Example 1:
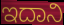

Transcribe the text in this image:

ಇದಾನಿ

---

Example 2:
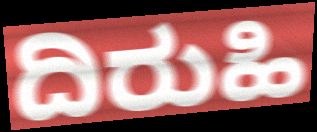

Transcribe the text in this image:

ದಿರುಹಿ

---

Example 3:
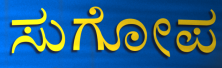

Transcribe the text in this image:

ಸುಗೋಪ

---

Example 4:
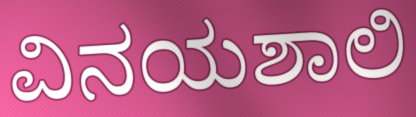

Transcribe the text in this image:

ವಿನಯಶಾಲಿ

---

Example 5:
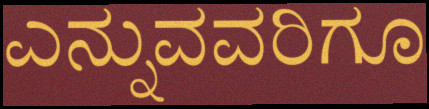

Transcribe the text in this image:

ಎನ್ನುವವರಿಗೂ